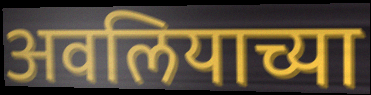
अवलियाच्या